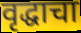
वृद्धाचा